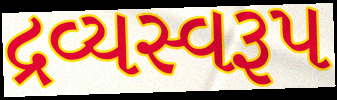
દ્રવ્યસ્વરૂપ